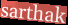
sarthak